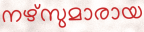
നഴ്സുമാരായ